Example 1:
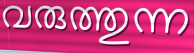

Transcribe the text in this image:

വരുത്തുന്ന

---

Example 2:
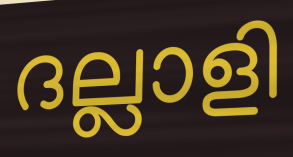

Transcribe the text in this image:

ദല്ലാളി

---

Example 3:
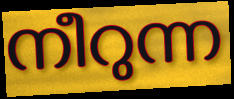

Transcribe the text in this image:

നീറുന്ന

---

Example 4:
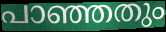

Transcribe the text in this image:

പാഞ്ഞതും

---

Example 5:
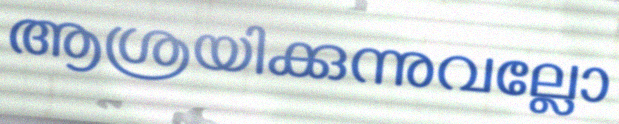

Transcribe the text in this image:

ആശ്രയിക്കുന്നുവല്ലോ